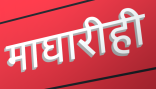
माघारीही